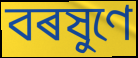
বৰষুণে